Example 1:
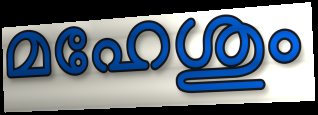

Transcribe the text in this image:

മഹേശും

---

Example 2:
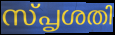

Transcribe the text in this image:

സ്പൃശതി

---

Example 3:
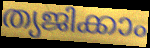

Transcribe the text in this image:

ത്യജിക്കാം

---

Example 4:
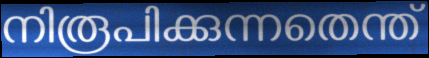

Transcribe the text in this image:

നിരൂപിക്കുന്നതെന്ത്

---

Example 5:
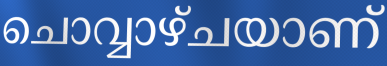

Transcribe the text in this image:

ചൊവ്വാഴ്ചയാണ്